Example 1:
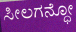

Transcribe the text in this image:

ಸೀಲಗನ್ಧೋ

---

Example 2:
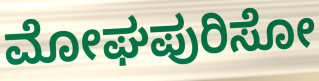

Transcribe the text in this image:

ಮೋಘಪುರಿಸೋ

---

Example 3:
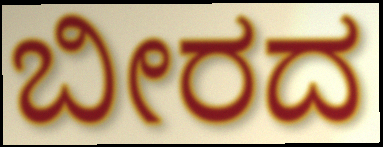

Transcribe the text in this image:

ಬೀರದ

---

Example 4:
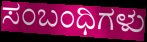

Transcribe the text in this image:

ಸಂಬಂಧಿಗಳು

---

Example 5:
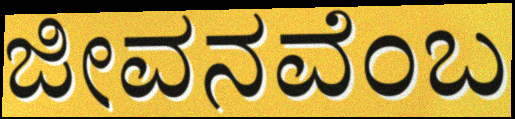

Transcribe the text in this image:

ಜೀವನವೆಂಬ